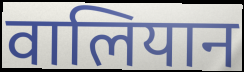
वालियान